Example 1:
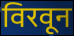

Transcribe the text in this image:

विरवून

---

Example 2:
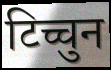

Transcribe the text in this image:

टिच्चुन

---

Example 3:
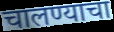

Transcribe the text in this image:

चालण्याचा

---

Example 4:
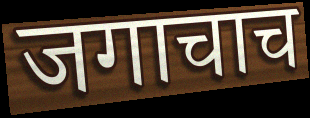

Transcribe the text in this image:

जगाचाच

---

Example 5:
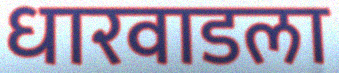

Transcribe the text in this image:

धारवाडला